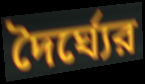
দৈর্ঘ্যের